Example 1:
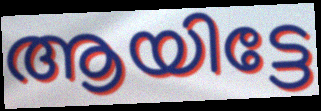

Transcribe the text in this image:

ആയിട്ടേ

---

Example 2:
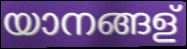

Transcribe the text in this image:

യാനങ്ങള്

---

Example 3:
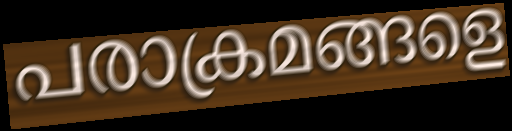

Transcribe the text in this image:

പരാക്രമങ്ങളെ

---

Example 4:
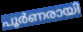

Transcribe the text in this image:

പൂർണരായി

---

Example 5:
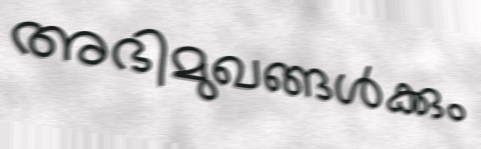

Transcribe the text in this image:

അഭിമുഖങ്ങൾക്കും